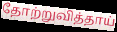
தோற்றுவித்தாய்